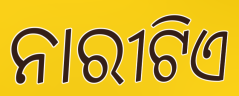
ନାରୀଟିଏ